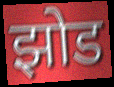
झोड